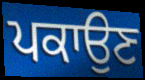
ਪਕਾਉਣ